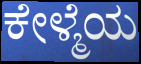
ಕೇಳ್ಮೆಯ